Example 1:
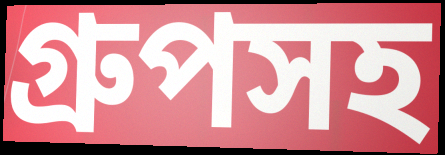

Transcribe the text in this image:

গ্রুপসহ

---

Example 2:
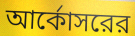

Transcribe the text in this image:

আর্কোসরের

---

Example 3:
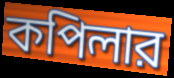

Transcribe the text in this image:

কপিলার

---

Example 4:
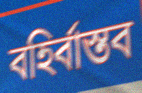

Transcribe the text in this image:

বহির্বাস্তব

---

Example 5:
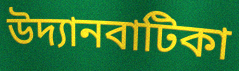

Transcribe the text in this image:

উদ্যানবাটিকা